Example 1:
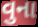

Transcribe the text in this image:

વુના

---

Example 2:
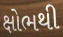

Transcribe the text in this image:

ક્ષોભથી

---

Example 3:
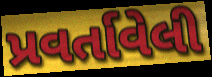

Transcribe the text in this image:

પ્રવર્તાવેલી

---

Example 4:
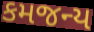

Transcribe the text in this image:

કમજન્ય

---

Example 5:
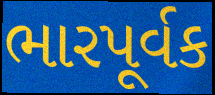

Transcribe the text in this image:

ભારપૂર્વક